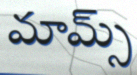
మామ్స్